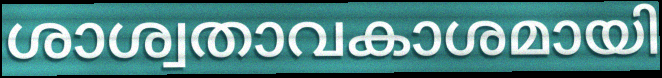
ശാശ്വതാവകാശമായി